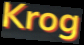
Krog